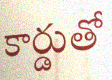
కార్డుతో